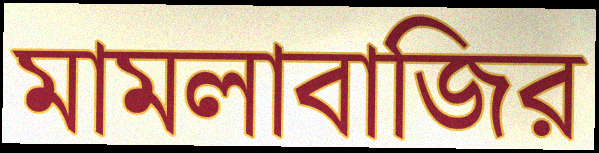
মামলাবাজির